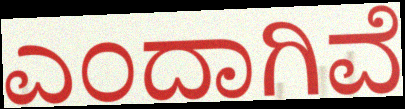
ಎಂದಾಗಿವೆ